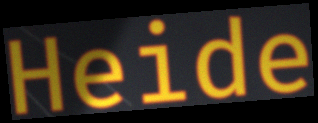
Heide